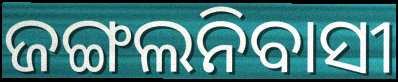
ଜଙ୍ଗଲନିବାସୀ